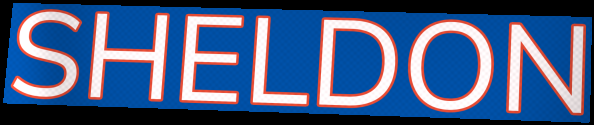
SHELDON